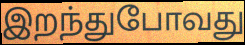
இறந்துபோவது